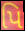
પિ